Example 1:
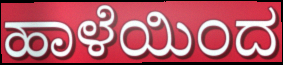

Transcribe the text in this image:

ಹಾಳೆಯಿಂದ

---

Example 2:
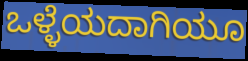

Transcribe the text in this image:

ಒಳ್ಳೆಯದಾಗಿಯೂ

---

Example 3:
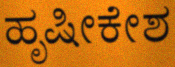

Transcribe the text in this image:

ಹೃಷೀಕೇಶ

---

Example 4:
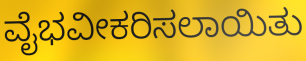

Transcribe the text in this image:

ವೈಭವೀಕರಿಸಲಾಯಿತು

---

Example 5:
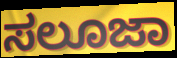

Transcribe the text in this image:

ಸಲೂಜಾ